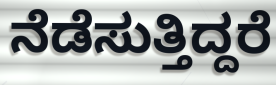
ನೆಡೆಸುತ್ತಿದ್ದರೆ